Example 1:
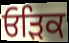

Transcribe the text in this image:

ਓੜਿਕ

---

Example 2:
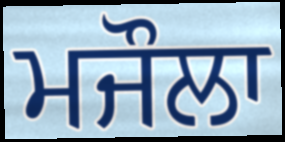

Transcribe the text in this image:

ਮਜੌਲਾ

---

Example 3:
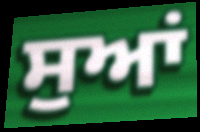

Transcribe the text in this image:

ਸੁਆਂ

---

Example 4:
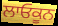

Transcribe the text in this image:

ਲਾਓਕੂਨ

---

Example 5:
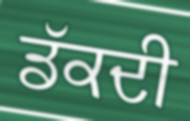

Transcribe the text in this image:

ਡੱਕਦੀ